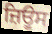
ਜ਼ਿਊਸ